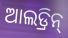
ଆଲଡ୍ରିନ୍